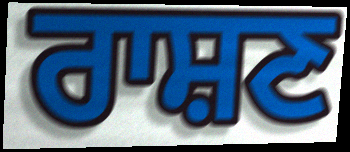
ਰਾਸ਼ਣ